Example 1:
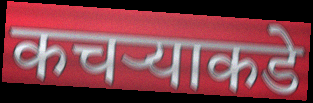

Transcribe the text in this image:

कचऱ्याकडे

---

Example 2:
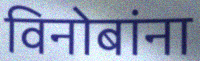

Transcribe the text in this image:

विनोबांना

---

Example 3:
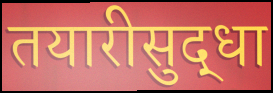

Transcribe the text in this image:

तयारीसुद्धा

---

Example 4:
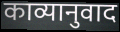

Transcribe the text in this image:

काव्यानुवाद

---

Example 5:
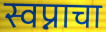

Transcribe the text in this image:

स्वप्नाचा